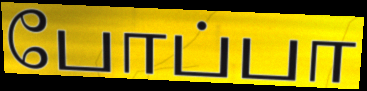
போப்பா